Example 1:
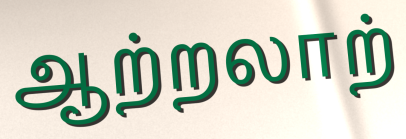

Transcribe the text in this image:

ஆற்றலாற்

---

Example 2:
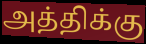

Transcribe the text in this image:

அத்திக்கு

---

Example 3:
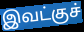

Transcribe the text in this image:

இவட்குச்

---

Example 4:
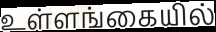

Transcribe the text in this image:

உள்ளங்கையில்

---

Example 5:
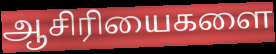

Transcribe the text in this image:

ஆசிரியைகளை